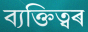
ব্যক্তিত্বৰ